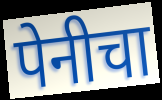
पेनीचा